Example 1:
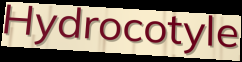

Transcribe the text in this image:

Hydrocotyle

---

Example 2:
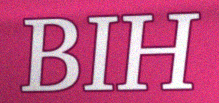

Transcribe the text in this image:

BIH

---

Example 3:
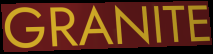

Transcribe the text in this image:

GRANITE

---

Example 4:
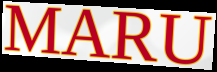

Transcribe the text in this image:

MARU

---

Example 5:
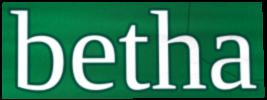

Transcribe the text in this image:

betha